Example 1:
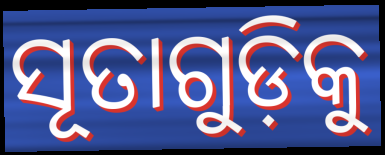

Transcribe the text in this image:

ସୂତାଗୁଡ଼ିକୁ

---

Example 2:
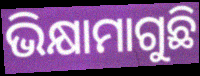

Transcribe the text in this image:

ଭିକ୍ଷାମାଗୁଛି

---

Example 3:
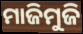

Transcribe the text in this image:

ମାଜିମୁଜି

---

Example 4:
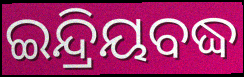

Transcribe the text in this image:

ଇନ୍ଦ୍ରିୟବଦ୍ଧ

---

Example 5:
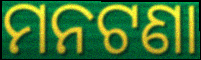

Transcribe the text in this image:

ମନଟଣା